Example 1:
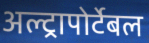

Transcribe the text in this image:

अल्ट्रापोर्टेबल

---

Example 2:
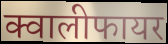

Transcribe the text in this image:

क्वालीफायर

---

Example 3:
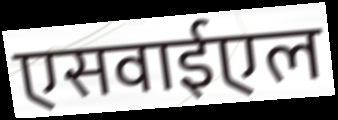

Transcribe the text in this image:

एसवाईएल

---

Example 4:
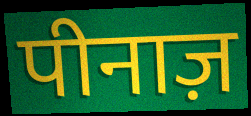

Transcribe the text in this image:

पीनाज़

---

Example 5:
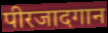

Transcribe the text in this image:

पीरजादगान